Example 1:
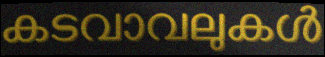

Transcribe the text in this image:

കടവാവലുകൾ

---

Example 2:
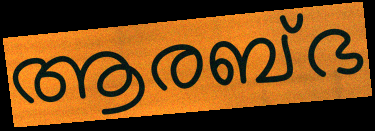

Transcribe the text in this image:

ആരബ്ഭ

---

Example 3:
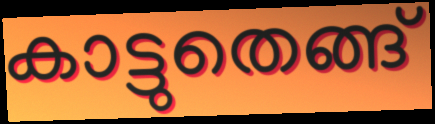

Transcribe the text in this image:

കാട്ടുതെങ്ങ്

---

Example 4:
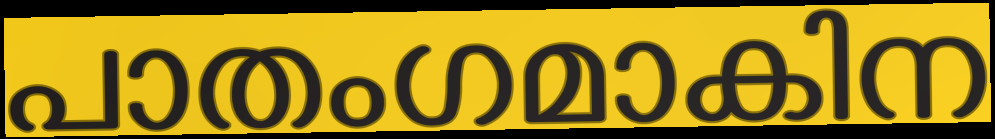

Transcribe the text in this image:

പാതംഗമാകിന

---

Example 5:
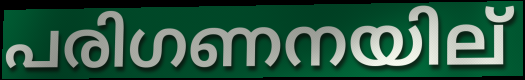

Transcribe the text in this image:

പരിഗണനയില്